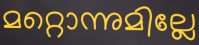
മറ്റൊന്നുമില്ലേ